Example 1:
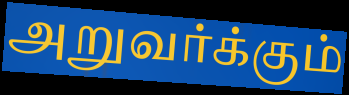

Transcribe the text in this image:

அறுவர்க்கும்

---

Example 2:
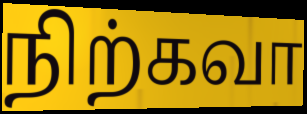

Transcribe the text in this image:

நிற்கவா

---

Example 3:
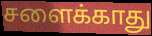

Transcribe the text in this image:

சளைக்காது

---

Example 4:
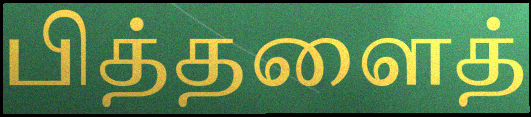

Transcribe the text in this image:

பித்தளைத்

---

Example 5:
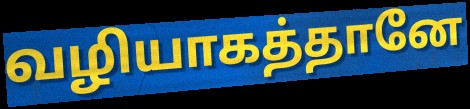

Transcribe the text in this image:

வழியாகத்தானே